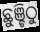
ଛୁଞ୍ଚିଠୁ